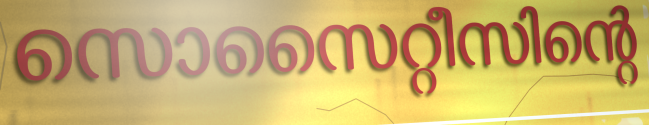
സൊസൈറ്റീസിന്റെ